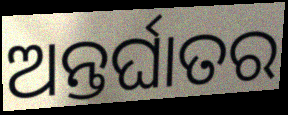
ଅନ୍ତର୍ଘାତର